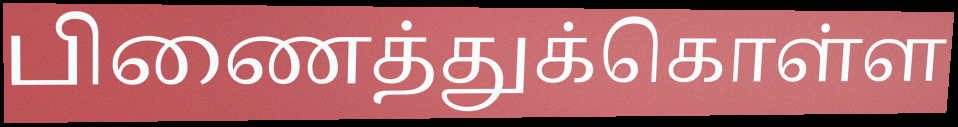
பிணைத்துக்கொள்ள